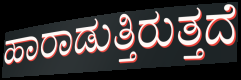
ಹಾರಾಡುತ್ತಿರುತ್ತದೆ